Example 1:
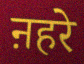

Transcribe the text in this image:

ऩहरे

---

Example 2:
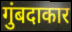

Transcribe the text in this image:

गुंबदाकार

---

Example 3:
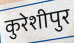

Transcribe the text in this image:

कुरेशीपुर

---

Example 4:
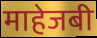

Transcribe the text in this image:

माहेजबी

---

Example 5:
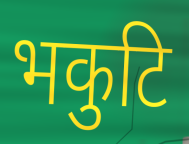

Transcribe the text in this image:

भकुटि